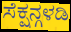
ಸೆಕ್ಷನ್ಗಳಡಿ